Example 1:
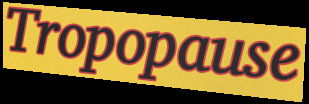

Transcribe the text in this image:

Tropopause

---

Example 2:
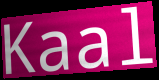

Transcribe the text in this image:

Kaal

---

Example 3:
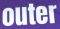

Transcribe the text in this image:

outer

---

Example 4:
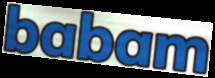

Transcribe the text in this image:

babam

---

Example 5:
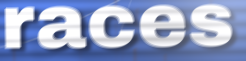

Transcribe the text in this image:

races